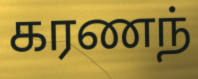
கரணந்